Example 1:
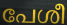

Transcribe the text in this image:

പേശീ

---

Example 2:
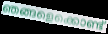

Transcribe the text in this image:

ഞങ്ങളെക്കൊണ്ട്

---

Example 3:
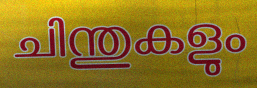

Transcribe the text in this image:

ചിന്തുകളും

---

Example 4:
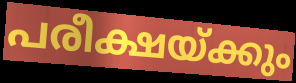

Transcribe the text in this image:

പരീക്ഷയ്ക്കും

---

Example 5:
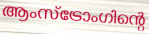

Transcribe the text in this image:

ആംസ്ട്രോംഗിന്റെ